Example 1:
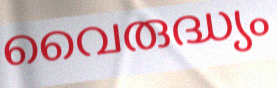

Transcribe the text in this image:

വൈരുദ്ധ്യം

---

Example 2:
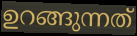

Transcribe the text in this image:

ഉറങ്ങുന്നത്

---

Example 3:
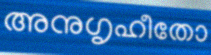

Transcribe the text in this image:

അനുഗൃഹീതോ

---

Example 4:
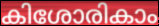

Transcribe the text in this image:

കിശോരികാം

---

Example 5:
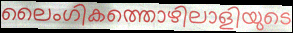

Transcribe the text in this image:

ലൈംഗികത്തൊഴിലാളിയുടെ